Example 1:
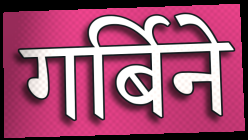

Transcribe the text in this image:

गर्बिने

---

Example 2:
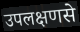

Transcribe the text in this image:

उपलक्षणसे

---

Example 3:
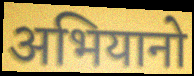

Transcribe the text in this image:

अभियानो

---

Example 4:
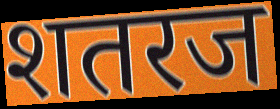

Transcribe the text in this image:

शतरज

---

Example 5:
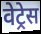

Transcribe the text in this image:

वेट्रेस